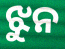
ଝୁନ